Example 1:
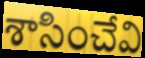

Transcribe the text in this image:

శాసించేవి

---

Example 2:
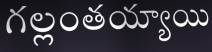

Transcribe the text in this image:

గల్లంతయ్యాయి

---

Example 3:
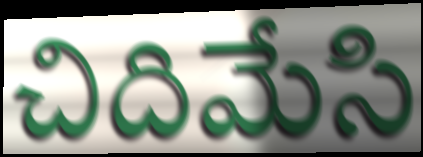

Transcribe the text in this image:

చిదిమేసి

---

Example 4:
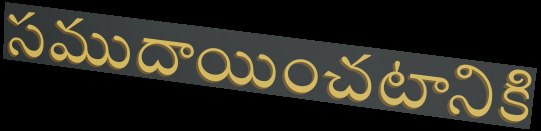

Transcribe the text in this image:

సముదాయించటానికి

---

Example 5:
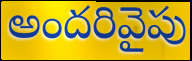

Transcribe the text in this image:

అందరివైపు